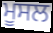
ਮੂਸਲ